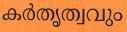
കർതൃത്വവും